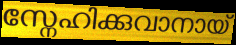
സ്നേഹിക്കുവാനായ്